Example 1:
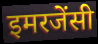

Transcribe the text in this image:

इमरजेंसी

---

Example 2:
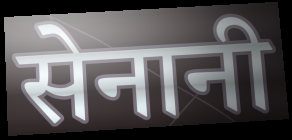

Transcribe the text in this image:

सेनानी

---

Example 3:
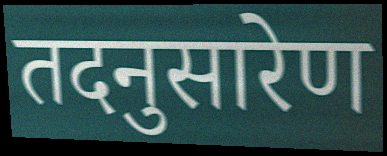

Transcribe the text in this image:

तदनुसारेण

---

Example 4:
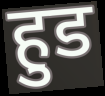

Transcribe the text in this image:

हुड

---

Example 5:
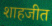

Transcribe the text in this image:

शाहजीत